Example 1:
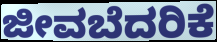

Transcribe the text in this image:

ಜೀವಬೆದರಿಕೆ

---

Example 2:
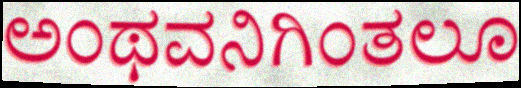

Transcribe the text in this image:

ಅಂಥವನಿಗಿಂತಲೂ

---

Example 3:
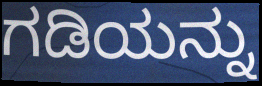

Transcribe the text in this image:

ಗಡಿಯನ್ನು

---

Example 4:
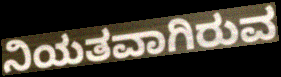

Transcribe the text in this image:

ನಿಯತವಾಗಿರುವ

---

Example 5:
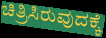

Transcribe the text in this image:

ಚಿತ್ರಿಸಿರುವುದಕ್ಕೆ